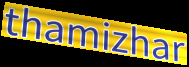
thamizhar